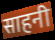
साहनी